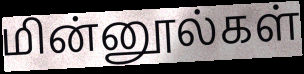
மின்னூல்கள்